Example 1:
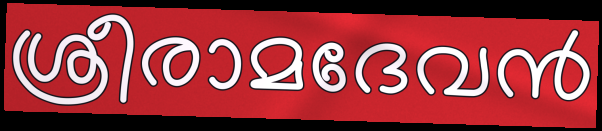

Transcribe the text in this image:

ശ്രീരാമദേവൻ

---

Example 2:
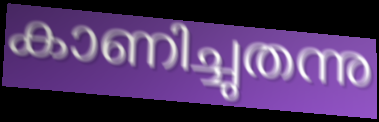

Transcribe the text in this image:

കാണിച്ചുതന്നു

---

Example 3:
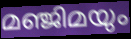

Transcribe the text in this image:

മഞ്ജിമയും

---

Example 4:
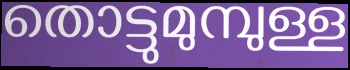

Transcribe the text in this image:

തൊട്ടുമുമ്പുള്ള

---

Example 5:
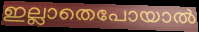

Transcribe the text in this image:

ഇല്ലാതെപോയാൽ